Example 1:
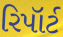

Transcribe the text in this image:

રિપૉર્ટ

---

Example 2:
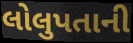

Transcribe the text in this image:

લોલુપતાની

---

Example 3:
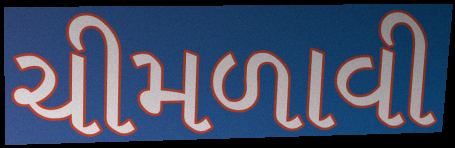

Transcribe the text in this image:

ચીમળાવી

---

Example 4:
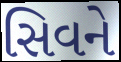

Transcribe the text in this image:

સિવને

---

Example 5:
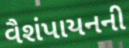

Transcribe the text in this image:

વૈશંપાયનની